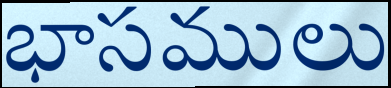
భాసములు